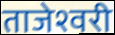
ताजेश्वरी